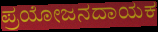
ಪ್ರಯೋಜನದಾಯಕ